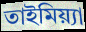
তাইমিয়্যা